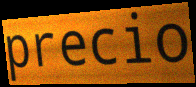
precio